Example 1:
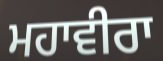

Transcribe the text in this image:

ਮਹਾਵੀਰਾ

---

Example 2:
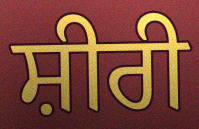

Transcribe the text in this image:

ਸ਼ੀਰੀ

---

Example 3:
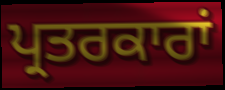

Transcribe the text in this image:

ਪ੍ਰਤਰਕਾਰਾਂ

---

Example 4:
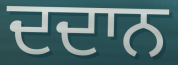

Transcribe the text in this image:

ਦਦਾਨ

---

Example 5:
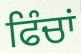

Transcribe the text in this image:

ਫਿੰਚਾਂ